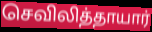
செவிலித்தாயார்